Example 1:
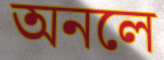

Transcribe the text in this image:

অনলে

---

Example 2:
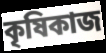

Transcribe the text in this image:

কৃষিকাজ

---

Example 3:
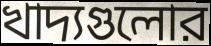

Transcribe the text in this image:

খাদ্যগুলোর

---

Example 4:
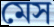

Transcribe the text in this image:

মেস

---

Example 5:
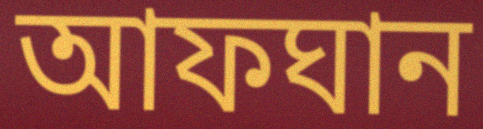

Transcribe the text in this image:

আফঘান